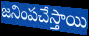
జనింపచేస్తాయి